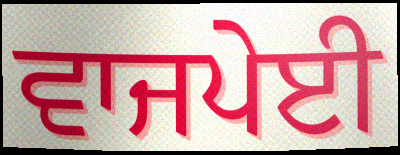
ਵਾਜਪੇਈ